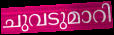
ചുവടുമാറി